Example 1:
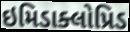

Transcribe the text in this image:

ઇમિડાક્લોપ્રિડ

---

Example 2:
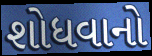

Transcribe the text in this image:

શોધવાનો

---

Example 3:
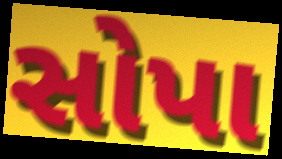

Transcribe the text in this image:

સોપા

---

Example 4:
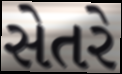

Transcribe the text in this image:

સેતરે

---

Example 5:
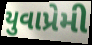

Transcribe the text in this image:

યુવાપ્રેમી